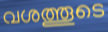
വശത്തൂടെ